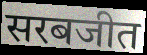
सरबजीत